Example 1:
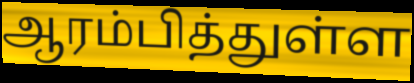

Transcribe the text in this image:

ஆரம்பித்துள்ள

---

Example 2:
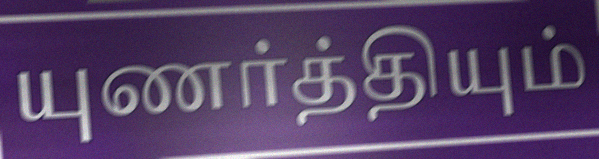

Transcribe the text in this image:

யுணர்த்தியும்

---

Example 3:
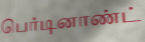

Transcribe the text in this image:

பெர்டினாண்ட்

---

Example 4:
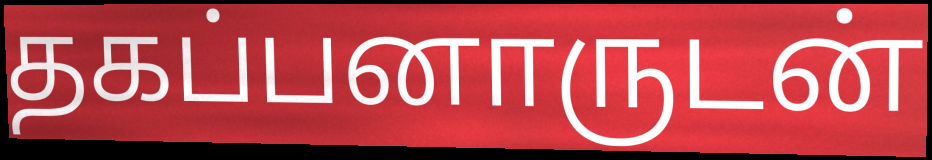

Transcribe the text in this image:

தகப்பனாருடன்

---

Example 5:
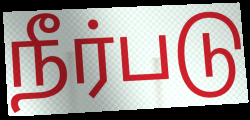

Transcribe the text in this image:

நீர்படு